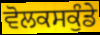
ਵੋਲਕਸਕੁੰਡੇ